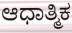
ಆಧಾತ್ಮಿಕ